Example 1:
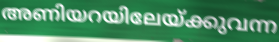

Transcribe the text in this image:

അണിയറയിലേയ്ക്കുവന്ന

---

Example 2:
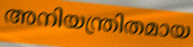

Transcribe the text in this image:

അനിയന്ത്രിതമായ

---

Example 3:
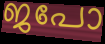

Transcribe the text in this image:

ജപോ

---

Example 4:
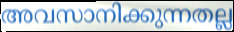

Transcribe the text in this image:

അവസാനിക്കുന്നതല്ല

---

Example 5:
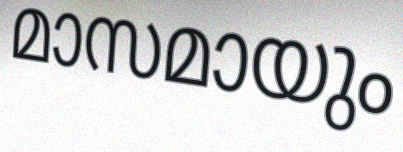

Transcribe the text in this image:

മാസമായും